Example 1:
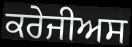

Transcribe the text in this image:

ਕਰੇਜੀਅਸ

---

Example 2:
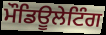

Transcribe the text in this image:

ਮੌਡਿਊਲੇਟਿੰਗ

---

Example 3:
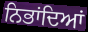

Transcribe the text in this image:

ਨਿਭਾਂਦਿਆਂ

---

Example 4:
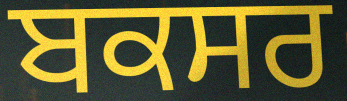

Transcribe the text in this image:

ਬਕਸਰ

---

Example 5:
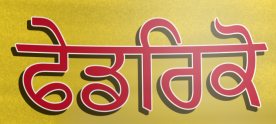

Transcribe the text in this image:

ਫੇਡਰਿਕੋ